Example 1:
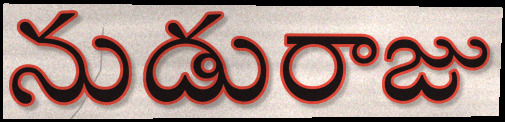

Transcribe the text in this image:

నుడురాజు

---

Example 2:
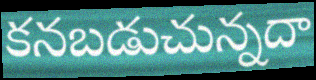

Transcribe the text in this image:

కనబడుచున్నదా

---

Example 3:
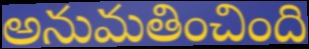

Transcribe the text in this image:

అనుమతించింది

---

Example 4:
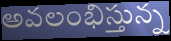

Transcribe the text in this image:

అవలంభిస్తున్న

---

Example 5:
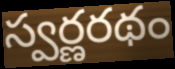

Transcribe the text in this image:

స్వర్ణరథం